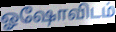
ஓஷோவிடம்